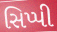
સિપ્પી